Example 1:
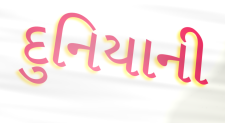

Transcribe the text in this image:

દુનિયાની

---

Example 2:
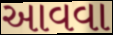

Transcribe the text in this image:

આવવા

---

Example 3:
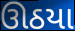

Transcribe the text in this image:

ઊઠયા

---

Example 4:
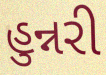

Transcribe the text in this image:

હુન્નરી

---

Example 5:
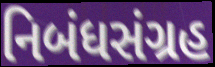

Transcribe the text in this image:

નિબંધસંગ્રહ